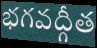
భగవద్గీత